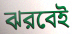
ঝরবেই